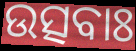
ଉତ୍ସବାଃ